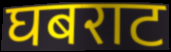
घबराट